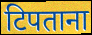
टिपताना